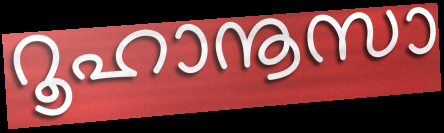
റൂഹാനൂസാ